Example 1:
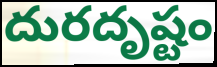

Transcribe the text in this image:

దురదృష్టం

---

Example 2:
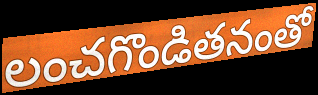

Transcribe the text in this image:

లంచగొండితనంతో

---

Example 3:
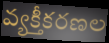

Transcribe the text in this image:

వ్యక్తీకరణల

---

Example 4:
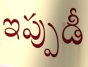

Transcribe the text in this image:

ఇప్పుడీ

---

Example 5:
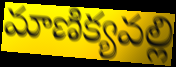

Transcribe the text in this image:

మాణిక్యవల్లి